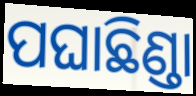
ପଘାଛିଣ୍ଡା